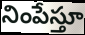
నింపేస్తూ